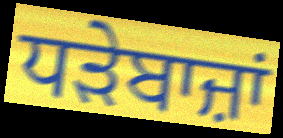
ਧੜੇਬਾਜ਼ਾਂ